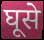
घूसे